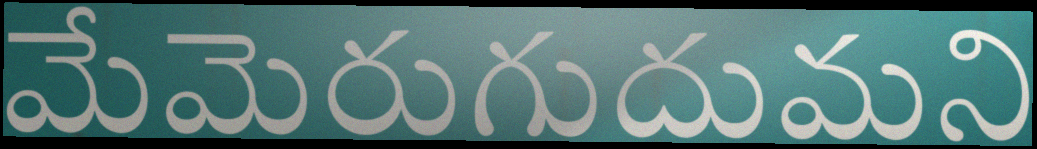
మేమెరుగుదుమని